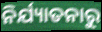
ନିର୍ଯ୍ୟାତନାରୁ